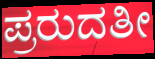
ಪ್ರರುದತೀ